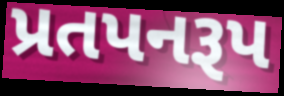
પ્રતપનરૂપ